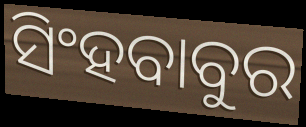
ସିଂହବାବୁର